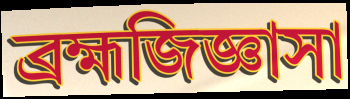
ব্রহ্মজিজ্ঞাসা